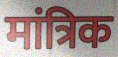
मांत्रिक